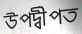
উপদ্বীপত